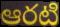
ఆరటి